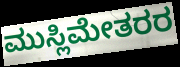
ಮುಸ್ಲಿಮೇತರರ